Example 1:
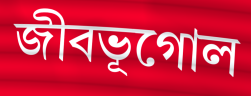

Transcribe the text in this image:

জীবভূগোল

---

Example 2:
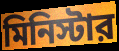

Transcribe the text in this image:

মিনিস্টার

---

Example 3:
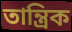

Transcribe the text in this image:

তান্ত্রিক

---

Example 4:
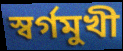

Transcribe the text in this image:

স্বর্গমুখী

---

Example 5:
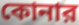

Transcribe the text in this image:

কোনার